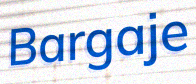
Bargaje